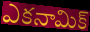
ఎకనామిక్